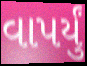
વાપર્યું